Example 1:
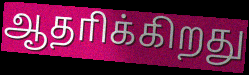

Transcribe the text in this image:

ஆதரிக்கிறது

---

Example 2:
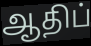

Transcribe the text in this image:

ஆதிப்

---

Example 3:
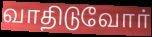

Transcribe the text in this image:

வாதிடுவோர்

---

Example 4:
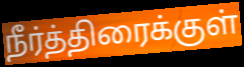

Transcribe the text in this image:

நீர்த்திரைக்குள்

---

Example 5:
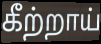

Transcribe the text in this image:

கீற்றாய்